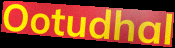
Ootudhal